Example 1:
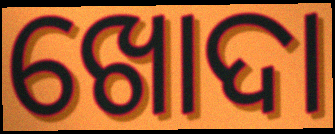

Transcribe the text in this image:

ଖୋଦା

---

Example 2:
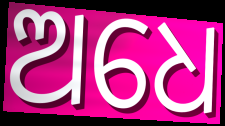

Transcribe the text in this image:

ଅଧେ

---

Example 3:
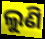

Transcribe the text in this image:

ଲୁଣି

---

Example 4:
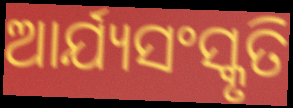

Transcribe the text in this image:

ଆର୍ଯ୍ୟସଂସ୍କୃତି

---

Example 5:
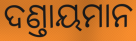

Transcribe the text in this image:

ଦଣ୍ତାୟମାନ